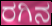
ರಗಿನ